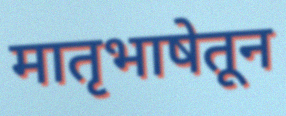
मातृभाषेतून